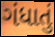
ગંધાતું